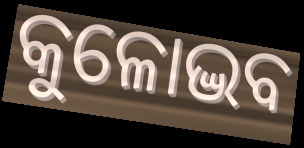
କୁଳୋଦ୍ଭବ